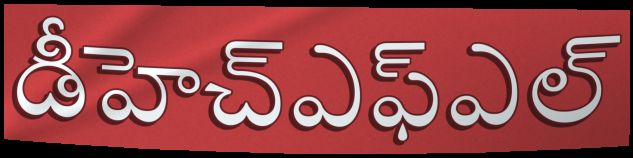
డీహెచ్ఎఫ్ఎల్